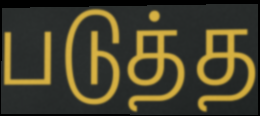
படுத்த